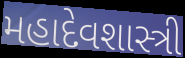
મહાદેવશાસ્ત્રી